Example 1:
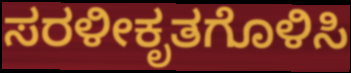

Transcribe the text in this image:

ಸರಳೀಕೃತಗೊಳಿಸಿ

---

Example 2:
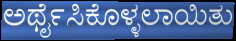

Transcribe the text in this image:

ಅರ್ಥೈಸಿಕೊಳ್ಳಲಾಯಿತು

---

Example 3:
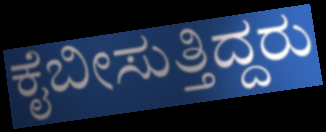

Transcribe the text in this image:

ಕೈಬೀಸುತ್ತಿದ್ದರು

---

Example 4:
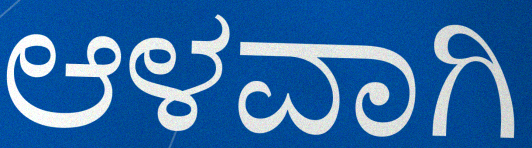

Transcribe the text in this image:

ಆಳವಾಗಿ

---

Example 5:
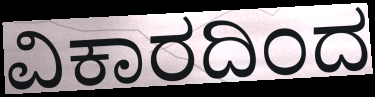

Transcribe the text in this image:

ವಿಕಾರದಿಂದ